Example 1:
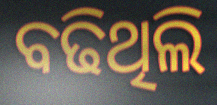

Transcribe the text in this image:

ବଢିଥିଲି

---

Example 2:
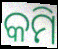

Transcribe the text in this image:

କମି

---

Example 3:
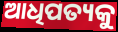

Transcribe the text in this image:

ଆଧିପତ୍ୟକୁ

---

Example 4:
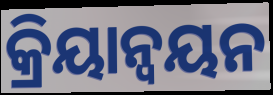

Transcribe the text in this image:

କ୍ରିୟାନ୍ଵୟନ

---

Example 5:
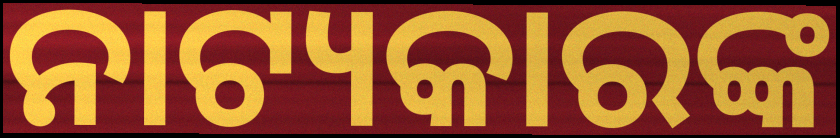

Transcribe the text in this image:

ନାଟ୍ୟକାରଙ୍କ